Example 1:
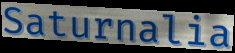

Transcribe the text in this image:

Saturnalia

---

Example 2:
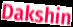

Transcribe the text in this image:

Dakshin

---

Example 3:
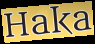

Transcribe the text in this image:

Haka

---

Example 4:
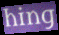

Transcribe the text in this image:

hing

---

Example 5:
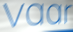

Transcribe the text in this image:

vaar